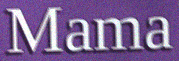
Mama